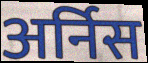
अर्निस